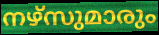
നഴ്സുമാരും